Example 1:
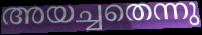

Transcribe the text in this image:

അയച്ചതെന്നു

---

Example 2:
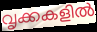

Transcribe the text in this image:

വൃക്കകളിൽ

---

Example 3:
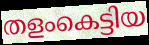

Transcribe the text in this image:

തളംകെട്ടിയ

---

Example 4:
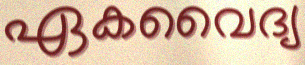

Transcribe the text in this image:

ഏകവൈദ്യ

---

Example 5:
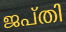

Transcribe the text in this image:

ജപ്‌തി